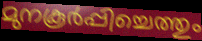
മുനകൂർപ്പിച്ചെത്തും